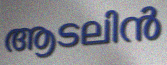
ആടലിൻ